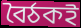
বৈঠকই